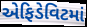
એફિડેવિટમાં